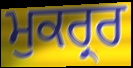
ਮੁਕਰ੍ਰਰ